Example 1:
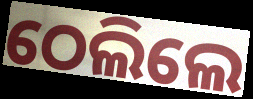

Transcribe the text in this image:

ଠେଲିଲେ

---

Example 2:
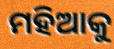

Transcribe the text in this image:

ମହିଆକୁ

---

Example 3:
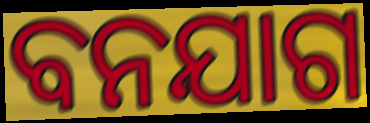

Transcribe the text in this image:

ବନଯାଗ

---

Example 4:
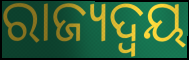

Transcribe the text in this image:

ରାଜ୍ୟଦ୍ୱୟ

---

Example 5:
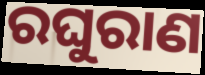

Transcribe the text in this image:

ରଘୁରାଣ